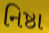
નિષ્ઠા